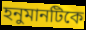
হনুমানটিকে